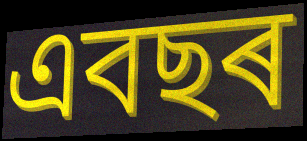
এবছৰ